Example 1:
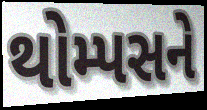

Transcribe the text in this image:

થોમ્પસને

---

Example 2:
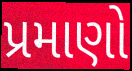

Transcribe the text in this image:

પ્રમાણો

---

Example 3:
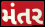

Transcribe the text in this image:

મંતર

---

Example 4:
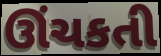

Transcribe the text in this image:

ઊંચકતી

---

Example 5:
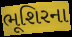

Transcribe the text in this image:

ભૂશિરના